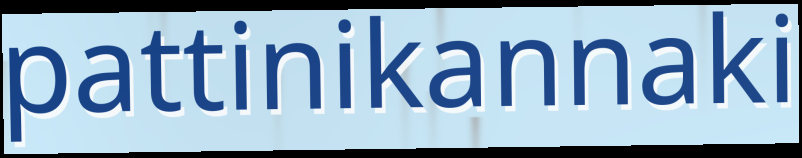
pattinikannaki